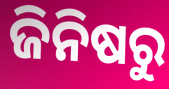
ଜିନିଷରୁ